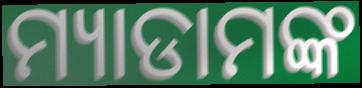
ମ୍ୟାଡାମଙ୍କ